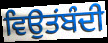
ਵਿਉਤਂਬੰਦੀ